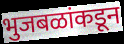
भुजबळांकडून